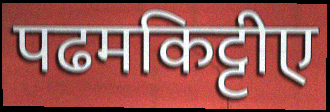
पढमकिट्टीए